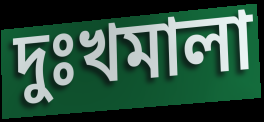
দুঃখমালা